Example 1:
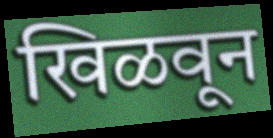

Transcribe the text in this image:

खिळवून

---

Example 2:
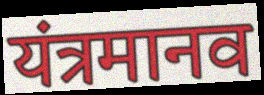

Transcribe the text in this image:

यंत्रमानव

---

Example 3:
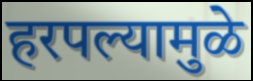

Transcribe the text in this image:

हरपल्यामुळे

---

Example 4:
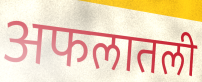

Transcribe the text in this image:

अफलातली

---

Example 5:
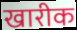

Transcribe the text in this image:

खारीक